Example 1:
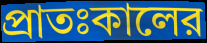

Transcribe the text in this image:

প্রাতঃকালের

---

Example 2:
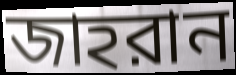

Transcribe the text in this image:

জাহরান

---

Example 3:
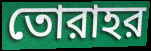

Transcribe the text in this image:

তোরাহর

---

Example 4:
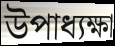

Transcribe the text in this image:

উপাধ্যক্ষা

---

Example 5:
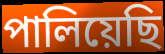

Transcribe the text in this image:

পালিয়েছি